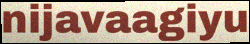
nijavaagiyu